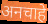
अनचाहे